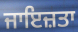
ਜਾਇਜ਼ਤਾ